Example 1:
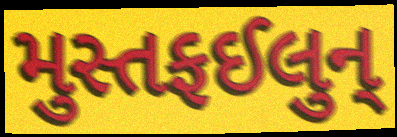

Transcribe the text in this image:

મુસ્તફઈલુન્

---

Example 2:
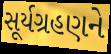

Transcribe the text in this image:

સૂર્યગ્રહણને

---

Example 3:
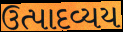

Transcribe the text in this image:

ઉત્પાદવ્યય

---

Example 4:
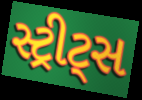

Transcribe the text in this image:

સ્ટ્રીટ્સ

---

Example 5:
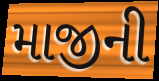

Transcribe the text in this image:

માજીની